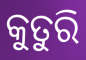
କୁତୁରି